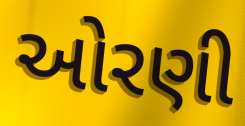
ઓરણી